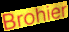
Brohier